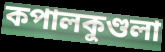
কপালকুণ্ডলা